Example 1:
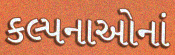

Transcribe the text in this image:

કલ્પનાઓનાં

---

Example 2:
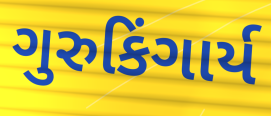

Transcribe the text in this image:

ગુરુકિંગાર્ય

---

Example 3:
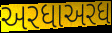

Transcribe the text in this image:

અરધાઅરધ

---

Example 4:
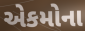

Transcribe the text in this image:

એકમોના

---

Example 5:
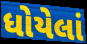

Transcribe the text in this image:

ધોયેલાં